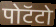
पोटॅटो